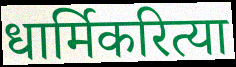
धार्मिकरित्या